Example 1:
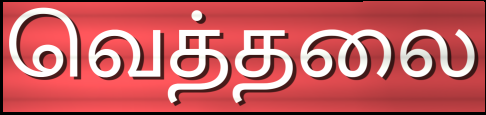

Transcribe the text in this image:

வெத்தலை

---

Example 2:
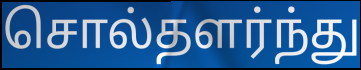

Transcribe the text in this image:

சொல்தளர்ந்து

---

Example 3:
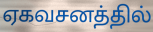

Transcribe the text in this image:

ஏகவசனத்தில்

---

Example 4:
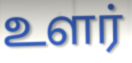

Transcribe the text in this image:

உளர்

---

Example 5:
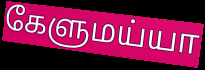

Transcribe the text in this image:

கேளுமய்யா